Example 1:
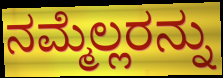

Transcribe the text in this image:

ನಮ್ಮೆಲ್ಲರನ್ನು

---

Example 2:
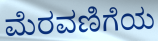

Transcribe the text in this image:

ಮೆರವಣಿಗೆಯ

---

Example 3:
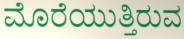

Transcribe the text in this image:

ಮೊರೆಯುತ್ತಿರುವ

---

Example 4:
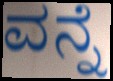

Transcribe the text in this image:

ವನ್ನೆ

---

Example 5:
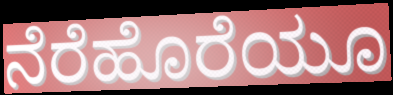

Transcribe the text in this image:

ನೆರೆಹೊರೆಯೂ